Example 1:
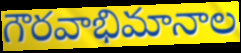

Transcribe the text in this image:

గౌరవాభిమానాల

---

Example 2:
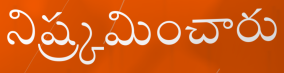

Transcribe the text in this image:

నిష్ర్కమించారు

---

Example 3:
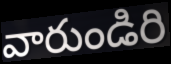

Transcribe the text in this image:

వారుండిరి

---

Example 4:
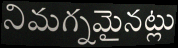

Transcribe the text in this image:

నిమగ్నమైనట్లు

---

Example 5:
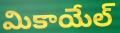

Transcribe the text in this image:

మికాయేల్